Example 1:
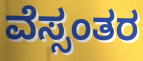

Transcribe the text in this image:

ವೆಸ್ಸಂತರ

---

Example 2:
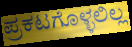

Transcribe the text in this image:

ಪ್ರಕಟಗೊಳ್ಳಲಿಲ್ಲ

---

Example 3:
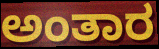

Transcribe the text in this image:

ಅಂತಾರ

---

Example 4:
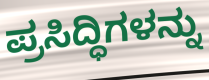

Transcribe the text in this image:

ಪ್ರಸಿದ್ಧಿಗಳನ್ನು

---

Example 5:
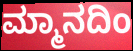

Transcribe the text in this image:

ಮ್ಮಾನದಿಂ